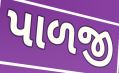
પાળજી